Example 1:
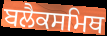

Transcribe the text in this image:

ਬਲੈਕਸਮਿਥ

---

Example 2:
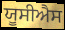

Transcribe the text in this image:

ਯੂਸੀਐਸ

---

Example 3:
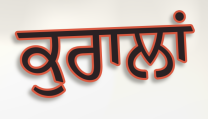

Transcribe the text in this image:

ਕੁਰਾਲਾਂ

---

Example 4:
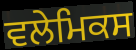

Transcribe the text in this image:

ਵਲੇਮਿਕਸ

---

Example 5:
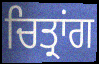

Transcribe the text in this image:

ਚਿਤ੍ਰਾਂਗ